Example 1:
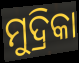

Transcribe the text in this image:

ମୁଦ୍ରିକା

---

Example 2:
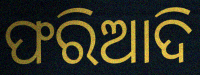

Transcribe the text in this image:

ଫରିଆଦି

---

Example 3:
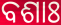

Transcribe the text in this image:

ବଶାଃ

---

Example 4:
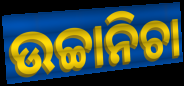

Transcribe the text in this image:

ଉଚ୍ଚାନିଚା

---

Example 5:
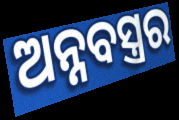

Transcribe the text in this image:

ଅନ୍ନବସ୍ତ୍ରର